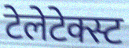
टेलेटेक्स्ट